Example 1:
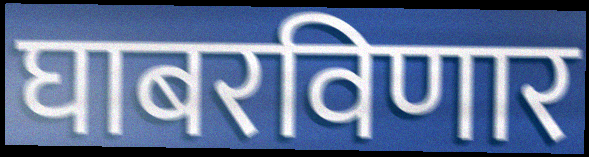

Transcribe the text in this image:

घाबरविणार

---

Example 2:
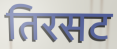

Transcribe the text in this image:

तिरसट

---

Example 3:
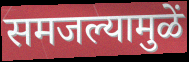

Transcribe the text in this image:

समजल्यामुळें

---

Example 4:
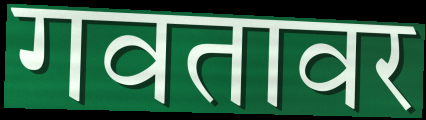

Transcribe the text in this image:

गवतावर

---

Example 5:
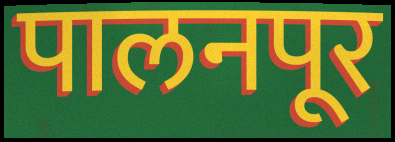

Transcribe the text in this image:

पालनपूर